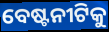
ବେଷ୍ଟନୀଟିକୁ